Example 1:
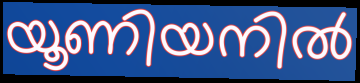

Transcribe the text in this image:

യൂണിയനിൽ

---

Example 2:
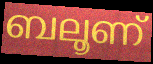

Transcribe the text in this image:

ബലൂണ്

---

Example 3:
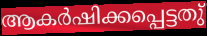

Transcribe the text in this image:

ആകർഷിക്കപ്പെട്ടതു്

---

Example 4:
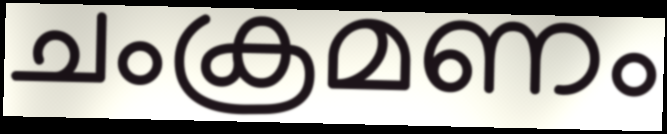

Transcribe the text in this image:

ചംക്രമണം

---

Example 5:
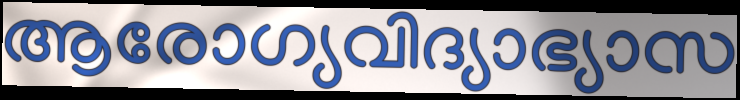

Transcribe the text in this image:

ആരോഗ്യവിദ്യാഭ്യാസ